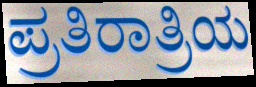
ಪ್ರತಿರಾತ್ರಿಯ